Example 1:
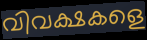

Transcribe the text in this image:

വിവക്ഷകളെ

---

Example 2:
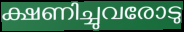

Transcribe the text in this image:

ക്ഷണിച്ചുവരോടു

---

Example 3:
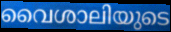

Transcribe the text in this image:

വൈശാലിയുടെ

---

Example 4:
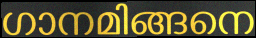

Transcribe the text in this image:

ഗാനമിങ്ങനെ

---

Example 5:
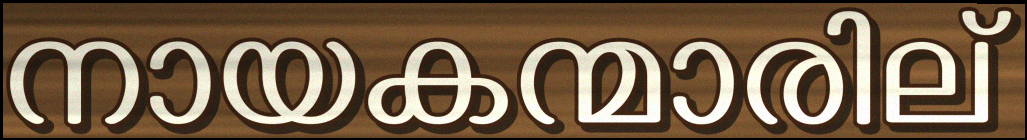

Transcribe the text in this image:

നായകന്മാരില്